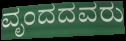
ವೃಂದದವರು